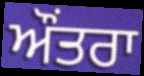
ਔਂਤਰਾ